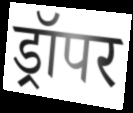
ड्रॉपर